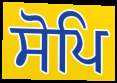
ਸੋਪਿ